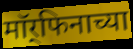
मॉर्फिनाच्या